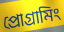
প্ৰোগ্ৰামিং